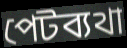
পেটব্যথা